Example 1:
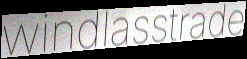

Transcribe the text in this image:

windlasstrade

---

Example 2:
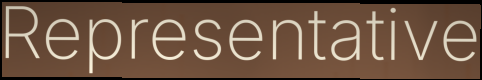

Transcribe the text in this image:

Representative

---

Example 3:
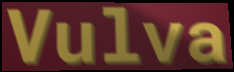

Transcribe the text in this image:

Vulva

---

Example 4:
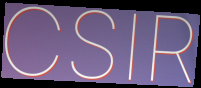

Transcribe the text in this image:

CSIR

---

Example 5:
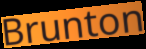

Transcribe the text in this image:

Brunton